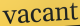
vacant